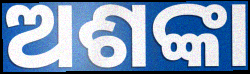
ଅଶଙ୍କା